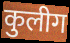
कुलीग